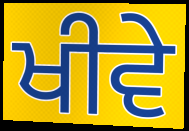
ਖੀਵੇ